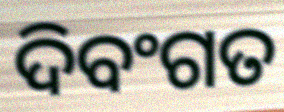
ଦିବଂଗତ